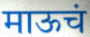
माऊचं